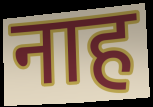
नाह